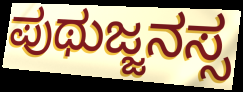
ಪುಥುಜ್ಜನಸ್ಸ